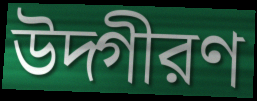
উদ্গীরণ